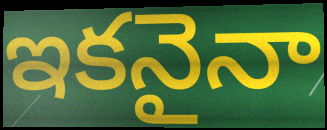
ఇకనైనా